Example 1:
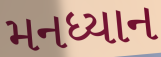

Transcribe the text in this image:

મનધ્યાન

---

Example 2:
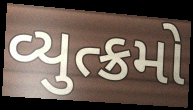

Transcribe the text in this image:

વ્યુત્ક્રમો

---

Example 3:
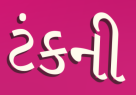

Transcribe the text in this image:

ટંકની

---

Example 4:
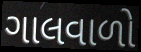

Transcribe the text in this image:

ગાલવાળો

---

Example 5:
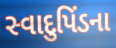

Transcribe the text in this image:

સ્વાદુપિંડના